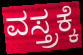
ವಸ್ತ್ರಕ್ಕೆ